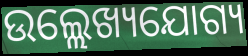
ଉଲ୍ଲେଖ୍ୟଯୋଗ୍ୟ